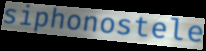
siphonostele